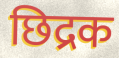
छिद्रक